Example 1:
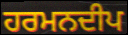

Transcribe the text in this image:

ਹਰਮਨਦੀਪ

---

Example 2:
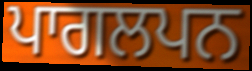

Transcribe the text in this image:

ਪਾਗਲਪਨ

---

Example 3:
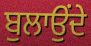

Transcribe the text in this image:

ਬੁਲਾਉਂਦੇ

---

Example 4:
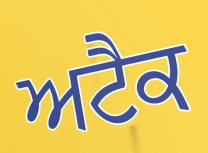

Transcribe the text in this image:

ਅਟੈਕ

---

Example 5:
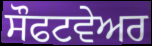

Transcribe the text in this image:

ਸੌਫਟਵੇਅਰ